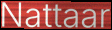
Nattaar